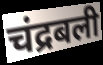
चंद्रबली